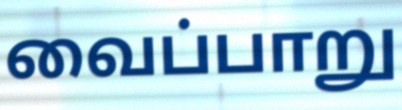
வைப்பாறு